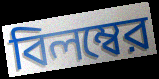
বিলম্বের